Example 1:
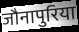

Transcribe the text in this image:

जौनापुरिया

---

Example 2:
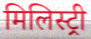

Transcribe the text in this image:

मिलिस्ट्री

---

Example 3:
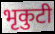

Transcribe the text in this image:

भृकुटी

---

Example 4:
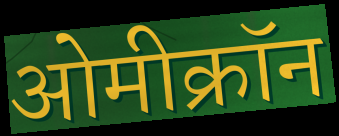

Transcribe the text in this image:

ओमीक्रॉन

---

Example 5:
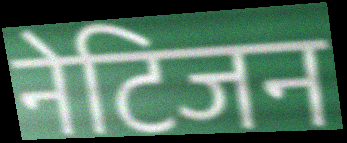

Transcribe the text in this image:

नेटिजन